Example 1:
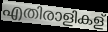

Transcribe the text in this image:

എതിരാളികള്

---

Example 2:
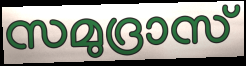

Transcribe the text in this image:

സമുദ്രാസ്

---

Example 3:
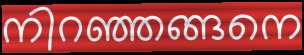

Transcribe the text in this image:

നിറഞ്ഞങ്ങനെ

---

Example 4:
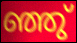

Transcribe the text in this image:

ഞ്ഞു്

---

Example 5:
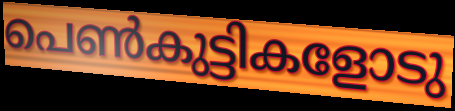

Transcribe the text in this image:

പെൺകുട്ടികളോടു